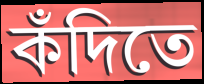
কঁদিতে